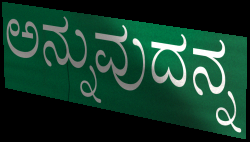
ಅನ್ನುವುದನ್ನ